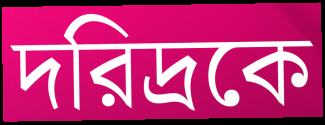
দরিদ্রকে